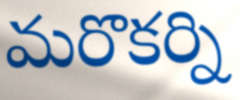
మరొకర్ని